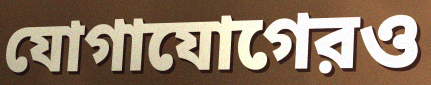
যোগাযোগেরও